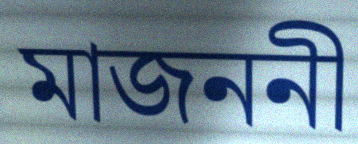
মাজননী